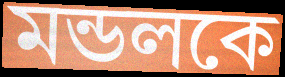
মন্ডলকে